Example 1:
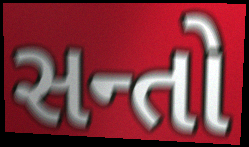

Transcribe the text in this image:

સન્તો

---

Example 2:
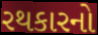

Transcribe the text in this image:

રથકારનો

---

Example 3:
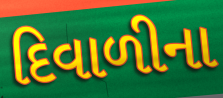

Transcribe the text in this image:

દિવાળીના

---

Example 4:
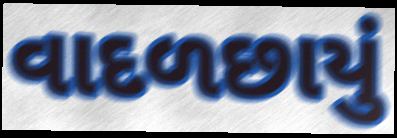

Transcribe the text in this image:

વાદળછાયું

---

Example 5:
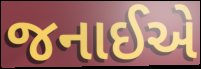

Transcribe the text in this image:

જનાઈએ